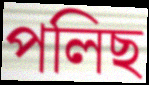
পলিছ